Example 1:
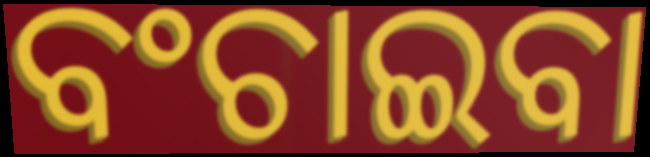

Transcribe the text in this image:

ବଂଚାଇବା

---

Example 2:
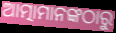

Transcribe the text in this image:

ଆତ୍ମାମାନଙ୍କଠାରୁ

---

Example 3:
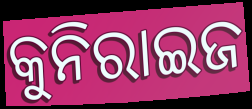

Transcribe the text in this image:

କୁନିରାଇଜ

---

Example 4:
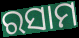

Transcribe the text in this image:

ରସାମ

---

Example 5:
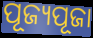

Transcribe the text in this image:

ପୂଜ୍ୟପୂଜା